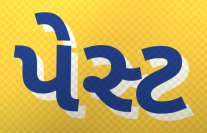
પેસ્ટ